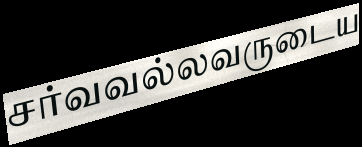
சர்வவல்லவருடைய